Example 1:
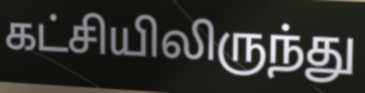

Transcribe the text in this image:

கட்சியிலிருந்து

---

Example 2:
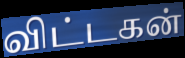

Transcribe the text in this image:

விட்டகன்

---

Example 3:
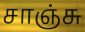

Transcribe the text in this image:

சாஞ்சு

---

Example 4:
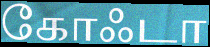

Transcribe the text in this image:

கோஃடா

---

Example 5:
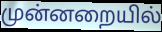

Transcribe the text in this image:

முன்னறையில்